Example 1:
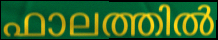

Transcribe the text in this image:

ഫാലത്തിൽ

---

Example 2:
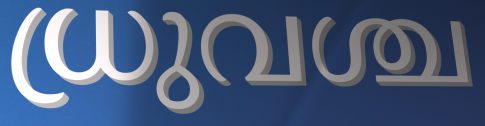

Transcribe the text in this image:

ധ്രുവശ്ച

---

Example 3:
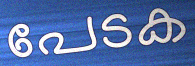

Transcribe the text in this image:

പേടക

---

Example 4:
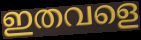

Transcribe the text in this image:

ഇതവളെ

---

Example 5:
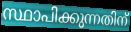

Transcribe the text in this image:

സ്ഥാപിക്കുന്നതിന്